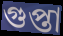
গুপ্তা